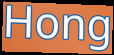
Hong